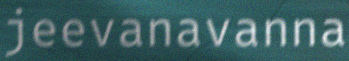
jeevanavanna